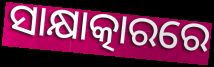
ସାକ୍ଷାତ୍କାରରେ